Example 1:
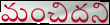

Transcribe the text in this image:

మంచిదని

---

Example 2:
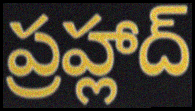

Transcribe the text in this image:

ప్రహ్లాద్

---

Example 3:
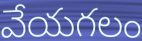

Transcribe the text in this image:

వేయగలం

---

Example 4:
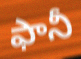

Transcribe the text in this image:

ఫానీ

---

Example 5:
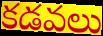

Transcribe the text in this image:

కడవలు